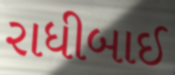
રાધીબાઈ